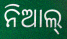
ନିଆଲ୍